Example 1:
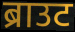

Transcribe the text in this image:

ब्राउट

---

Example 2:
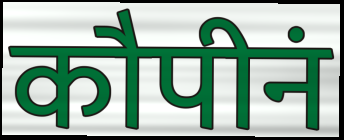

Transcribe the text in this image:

कौपीनं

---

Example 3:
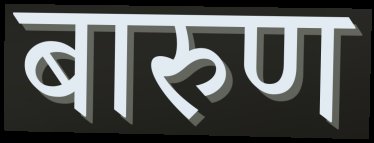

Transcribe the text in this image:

बारुण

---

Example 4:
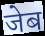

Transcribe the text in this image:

जेब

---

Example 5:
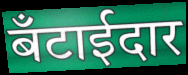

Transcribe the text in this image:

बँटाईदार